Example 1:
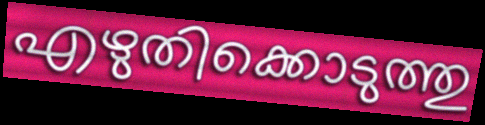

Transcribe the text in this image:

എഴുതിക്കൊടുത്തു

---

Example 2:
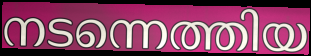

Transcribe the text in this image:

നടന്നെത്തിയ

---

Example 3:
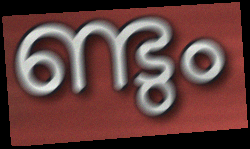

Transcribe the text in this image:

ണ്ടും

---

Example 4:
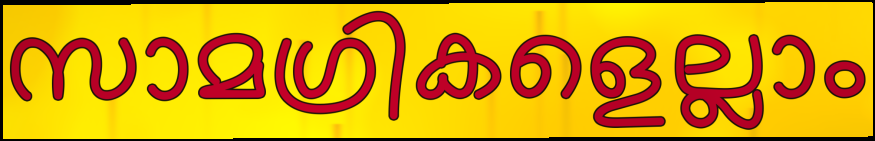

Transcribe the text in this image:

സാമഗ്രികളെല്ലാം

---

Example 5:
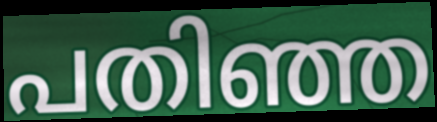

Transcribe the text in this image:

പതിഞ്ഞ